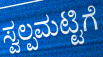
ಸ್ವಲ್ಪಮಟ್ಟಿಗೆ